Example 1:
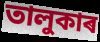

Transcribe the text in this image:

তালুকাৰ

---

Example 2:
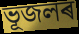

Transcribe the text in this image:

ভূজলৰ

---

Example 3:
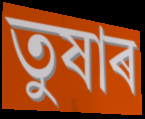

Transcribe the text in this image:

তুষাৰ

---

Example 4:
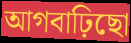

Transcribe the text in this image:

আগবাঢ়িছো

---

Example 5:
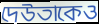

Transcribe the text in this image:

দেউতাকেও